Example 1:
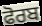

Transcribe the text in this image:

ਫੋਰਬ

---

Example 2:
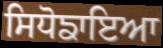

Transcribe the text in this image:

ਸਿਧੋਙਾਇਆ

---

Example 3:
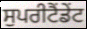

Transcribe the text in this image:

ਸੁਪਰੀਟੈਂਡੇਂਟ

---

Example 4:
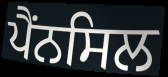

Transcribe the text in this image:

ਪੈਂਨਸਿਲ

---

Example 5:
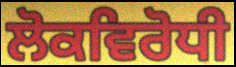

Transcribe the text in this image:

ਲੋਕਵਿਰੋਧੀ